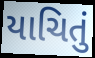
યાચિતું